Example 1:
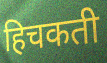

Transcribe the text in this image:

हिचकती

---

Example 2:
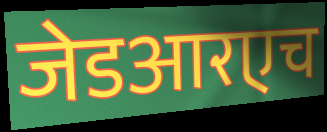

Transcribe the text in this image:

जेडआरएच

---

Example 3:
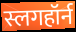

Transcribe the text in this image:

स्लगहॉर्न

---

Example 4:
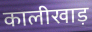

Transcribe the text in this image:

कालीखाड़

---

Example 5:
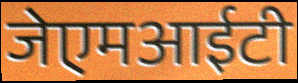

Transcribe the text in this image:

जेएमआईटी